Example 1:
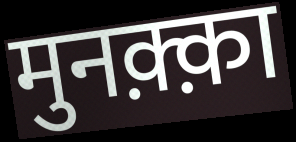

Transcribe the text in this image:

मुनक़्क़ा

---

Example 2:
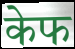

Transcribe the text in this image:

केफ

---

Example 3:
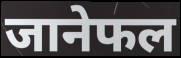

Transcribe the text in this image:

जानेफल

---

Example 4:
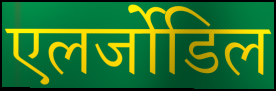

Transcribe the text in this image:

एलर्जोडिल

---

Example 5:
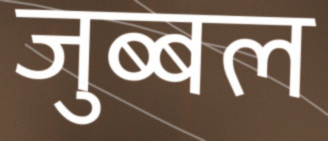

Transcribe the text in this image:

जुब्बल